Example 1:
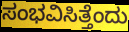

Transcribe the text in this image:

ಸಂಭವಿಸಿತ್ತೆಂದು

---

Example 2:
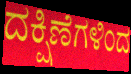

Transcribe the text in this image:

ದಕ್ಷಿಣೆಗಳಿಂದ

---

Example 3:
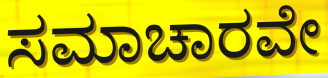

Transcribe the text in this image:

ಸಮಾಚಾರವೇ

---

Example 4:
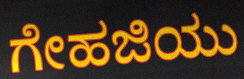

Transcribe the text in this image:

ಗೇಹಜಿಯು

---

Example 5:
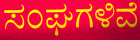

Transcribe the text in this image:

ಸಂಘಗಳಿವೆ